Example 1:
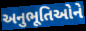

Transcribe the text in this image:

અનુભૂતિઓને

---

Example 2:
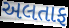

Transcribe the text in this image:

અલતાફ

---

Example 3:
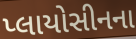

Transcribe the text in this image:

પ્લાયોસીનના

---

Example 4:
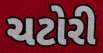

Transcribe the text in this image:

ચટોરી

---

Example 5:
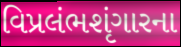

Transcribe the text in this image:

વિપ્રલંભશૃંગારના